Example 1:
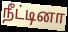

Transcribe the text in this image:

நீட்டினா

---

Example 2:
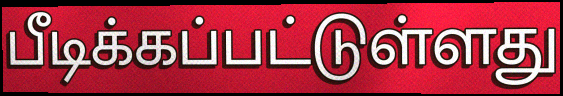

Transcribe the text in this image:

பீடிக்கப்பட்டுள்ளது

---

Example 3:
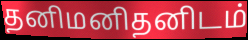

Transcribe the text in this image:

தனிமனிதனிடம்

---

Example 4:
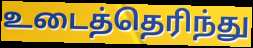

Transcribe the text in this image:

உடைத்தெரிந்து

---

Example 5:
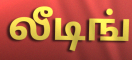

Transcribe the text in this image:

லீடிங்